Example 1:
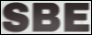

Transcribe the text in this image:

SBE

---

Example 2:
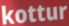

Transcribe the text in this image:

kottur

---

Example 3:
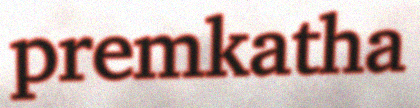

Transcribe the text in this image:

premkatha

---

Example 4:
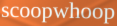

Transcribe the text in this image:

scoopwhoop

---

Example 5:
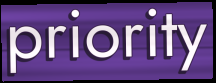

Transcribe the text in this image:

priority